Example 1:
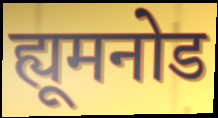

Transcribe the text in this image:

ह्यूमनोड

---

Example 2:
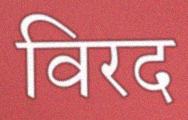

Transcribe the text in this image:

विरद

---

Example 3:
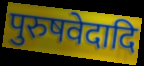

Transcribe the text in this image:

पुरुषवेदादि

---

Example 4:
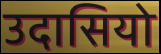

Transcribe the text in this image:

उदासियो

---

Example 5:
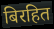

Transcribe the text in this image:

बिरहित